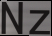
Nz